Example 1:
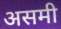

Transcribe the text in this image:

असमी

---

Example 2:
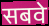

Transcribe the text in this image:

सबवे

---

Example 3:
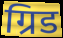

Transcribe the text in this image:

ग्रिड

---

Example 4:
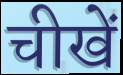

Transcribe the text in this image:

चीखें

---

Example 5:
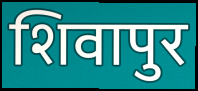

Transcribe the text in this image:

शिवापुर